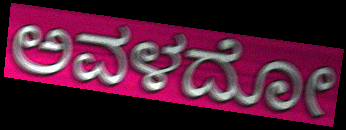
ಅವಳದೋ